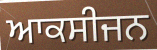
ਆਕਸੀਜਨ